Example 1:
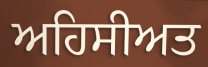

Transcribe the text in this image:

ਅਹਿਸੀਅਤ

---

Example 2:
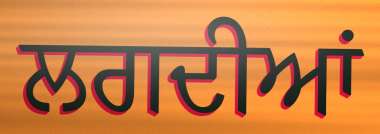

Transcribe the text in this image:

ਲਗਦੀਆਂ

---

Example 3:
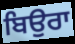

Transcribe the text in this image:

ਬਿਉਰਾ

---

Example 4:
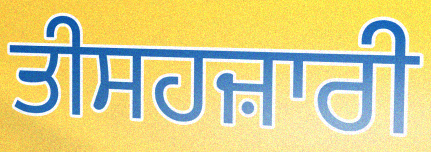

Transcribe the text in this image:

ਤੀਸਹਜ਼ਾਰੀ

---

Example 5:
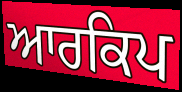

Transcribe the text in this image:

ਆਰਕਿਪ